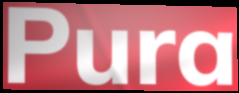
Pura